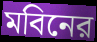
মবিনের